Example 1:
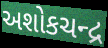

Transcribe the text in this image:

અશોકચન્દ્ર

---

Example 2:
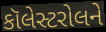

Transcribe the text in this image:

કૉલેસ્ટરોલને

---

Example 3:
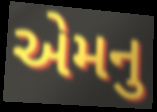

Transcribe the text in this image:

એમનુ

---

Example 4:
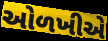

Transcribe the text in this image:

ઓળખીએ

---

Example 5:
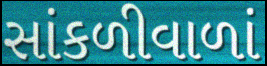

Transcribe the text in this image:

સાંકળીવાળાં